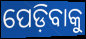
ପେଡ଼ିବାକୁ